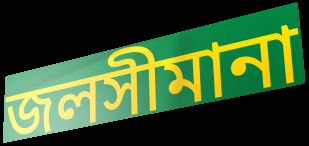
জলসীমানা